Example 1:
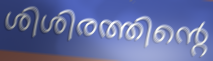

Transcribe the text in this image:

ശിശിരത്തിന്റെ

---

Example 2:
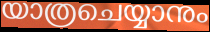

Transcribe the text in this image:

യാത്രചെയ്യാനും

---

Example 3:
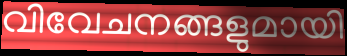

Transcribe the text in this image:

വിവേചനങ്ങളുമായി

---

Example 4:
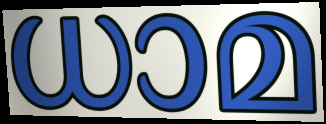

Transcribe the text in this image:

ധാമ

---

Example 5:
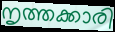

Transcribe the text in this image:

നൃത്തക്കാരി